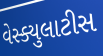
વેસ્ક્યુલાટીસ